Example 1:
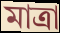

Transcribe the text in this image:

মাত্ৰা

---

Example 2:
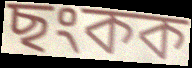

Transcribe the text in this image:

ছংকক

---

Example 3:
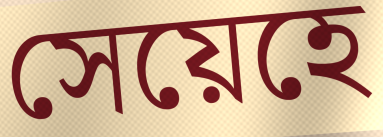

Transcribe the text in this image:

সেয়েহে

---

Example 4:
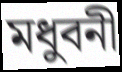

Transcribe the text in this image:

মধুবনী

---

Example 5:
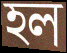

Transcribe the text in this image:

হল